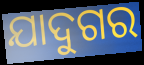
ଯାଦୁଗର